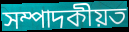
সম্পাদকীয়ত